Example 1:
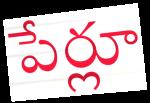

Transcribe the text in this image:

పేర్లూ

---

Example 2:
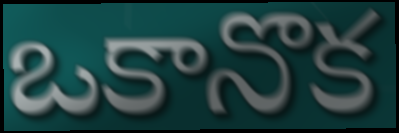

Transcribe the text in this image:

ఒకానొక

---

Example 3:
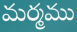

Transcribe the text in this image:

మర్మము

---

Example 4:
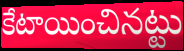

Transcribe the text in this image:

కేటాయించినట్టు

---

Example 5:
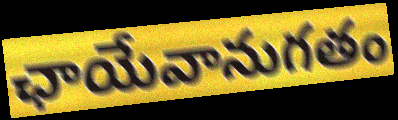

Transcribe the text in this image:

ఛాయేవానుగతం